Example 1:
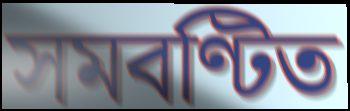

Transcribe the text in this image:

সমবণ্টিত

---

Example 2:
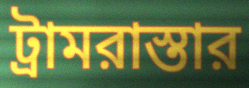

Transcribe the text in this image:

ট্রামরাস্তার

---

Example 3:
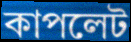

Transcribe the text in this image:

কাপলেট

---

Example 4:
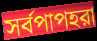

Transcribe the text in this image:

সর্বপাপহরা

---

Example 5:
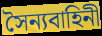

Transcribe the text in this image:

সৈন্যবাহিনী